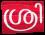
ശ്രി